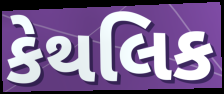
કેથલિક